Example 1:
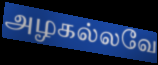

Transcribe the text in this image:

அழகல்லவே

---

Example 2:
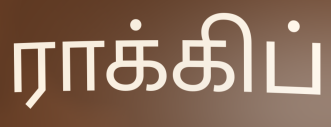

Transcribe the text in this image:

ராக்கிப்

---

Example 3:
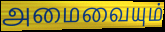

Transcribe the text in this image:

அமைவையும்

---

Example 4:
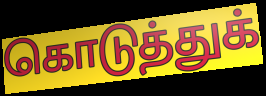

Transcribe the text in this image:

கொடுத்துக்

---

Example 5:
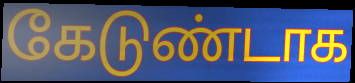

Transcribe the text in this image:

கேடுண்டாக